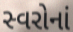
સ્વરોનાં